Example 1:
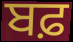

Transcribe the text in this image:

ਬਫ਼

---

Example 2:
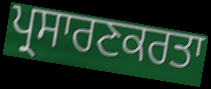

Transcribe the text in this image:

ਪ੍ਰਸਾਰਣਕਰਤਾ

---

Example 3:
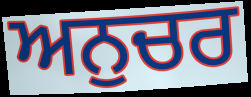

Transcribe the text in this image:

ਅਨੁਚਰ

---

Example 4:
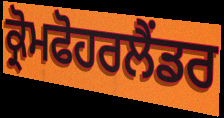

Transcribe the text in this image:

ਕ੍ਰੋਮਫੋਹਰਲੈਂਡਰ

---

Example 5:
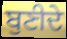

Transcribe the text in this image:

ਬੁਣੀਦੇ